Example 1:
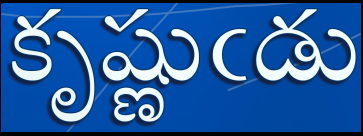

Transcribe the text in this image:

కృష్ణుఁడు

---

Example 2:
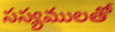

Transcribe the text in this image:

సస్యములతో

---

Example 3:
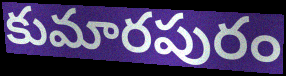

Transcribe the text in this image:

కుమారపురం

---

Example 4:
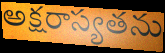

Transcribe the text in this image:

అక్షరాస్యతను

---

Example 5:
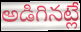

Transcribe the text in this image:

అడిగినట్లే